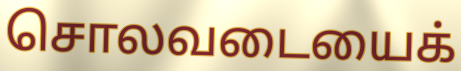
சொலவடையைக்